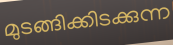
മുടങ്ങിക്കിടക്കുന്ന